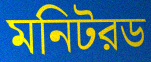
মনিটরড